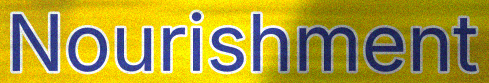
Nourishment